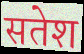
सतेश